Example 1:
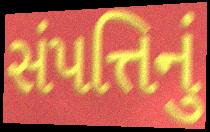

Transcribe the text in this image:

સંપત્તિનું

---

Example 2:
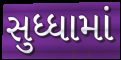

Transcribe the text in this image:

સુધ્ધામાં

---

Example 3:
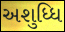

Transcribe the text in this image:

અશુધ્ધિ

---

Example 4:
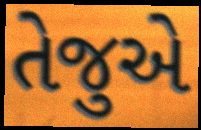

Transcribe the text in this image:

તેજુએ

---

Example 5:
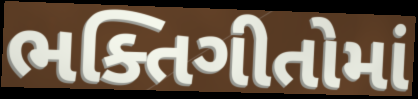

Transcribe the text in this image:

ભક્તિગીતોમાં